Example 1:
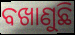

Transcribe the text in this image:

ବଖାଣୁଛି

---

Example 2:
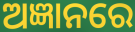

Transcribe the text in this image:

ଅଜ୍ଞାନରେ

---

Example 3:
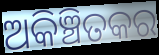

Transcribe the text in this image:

ଅକିଞ୍ଚିତକର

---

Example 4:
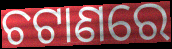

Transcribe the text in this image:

ଚଟାଣରେ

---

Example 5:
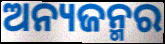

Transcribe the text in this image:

ଅନ୍ୟଜନ୍ମର